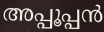
അപ്പൂപ്പൻ